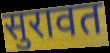
सुरावत